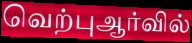
வெற்புஆர்வில்